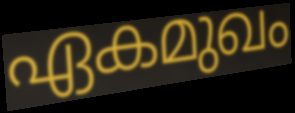
ഏകമുഖം